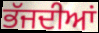
ਭੱਜਦੀਆਂ